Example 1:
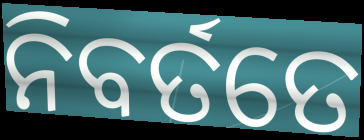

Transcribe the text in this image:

ନିବର୍ତତେ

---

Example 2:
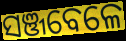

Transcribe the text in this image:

ସଞ୍ଜବେଳେ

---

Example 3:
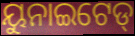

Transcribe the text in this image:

ୟୁନାଇଟେଡ୍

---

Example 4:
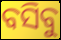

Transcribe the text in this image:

ବସିବୁ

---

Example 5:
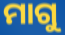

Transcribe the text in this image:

ମାଗୁ